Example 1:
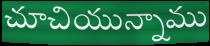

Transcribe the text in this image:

చూచియున్నాము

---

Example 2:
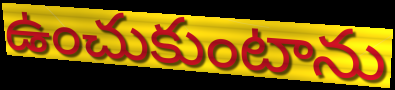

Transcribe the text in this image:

ఉంచుకుంటాను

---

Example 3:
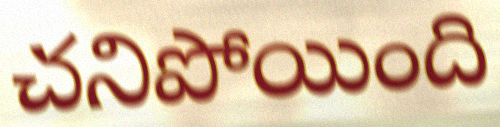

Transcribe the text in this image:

చనిపోయింది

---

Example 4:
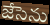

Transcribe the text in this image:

జేసెను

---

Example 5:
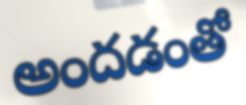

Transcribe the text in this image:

అందడంతో